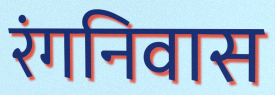
रंगनिवास